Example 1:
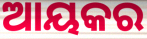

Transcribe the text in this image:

ଆୟକର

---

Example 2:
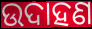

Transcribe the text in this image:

ଉଦାହଣ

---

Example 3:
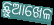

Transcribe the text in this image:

ଛୁଆଖେଳ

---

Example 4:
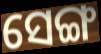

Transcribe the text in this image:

ସେଙ୍ଗ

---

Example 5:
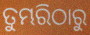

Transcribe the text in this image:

ତୁମ୍ଭରିଠାରୁ